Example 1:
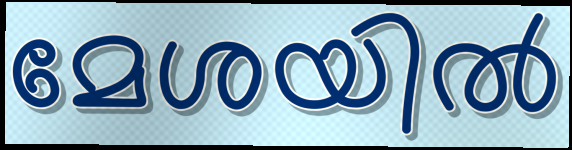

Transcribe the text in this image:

മേശയിൽ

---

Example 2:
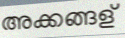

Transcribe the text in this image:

അക്കങ്ങള്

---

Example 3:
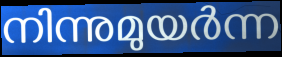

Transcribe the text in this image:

നിന്നുമുയർന്ന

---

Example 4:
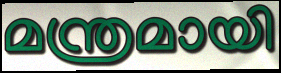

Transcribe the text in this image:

മന്ത്രമായി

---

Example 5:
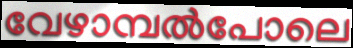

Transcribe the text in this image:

വേഴാമ്പൽപോലെ